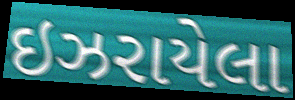
ઇઝરાયેલા